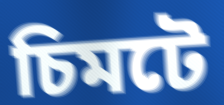
চিমটে